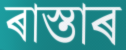
ৰাস্তাৰ